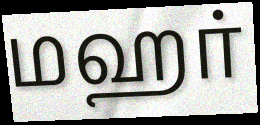
மஹர்